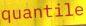
quantile